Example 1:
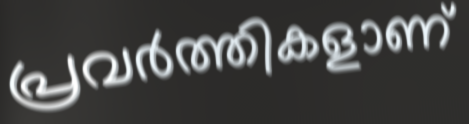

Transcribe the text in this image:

പ്രവർത്തികളാണ്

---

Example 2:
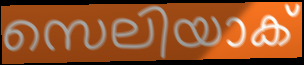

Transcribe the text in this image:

സെലിയാക്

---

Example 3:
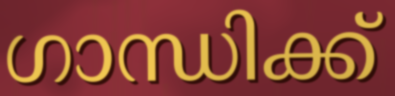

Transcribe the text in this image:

ഗാന്ധിക്ക്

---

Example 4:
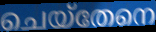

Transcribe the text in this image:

ചെയ്തേനെ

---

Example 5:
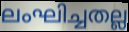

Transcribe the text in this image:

ലംഘിച്ചതല്ല